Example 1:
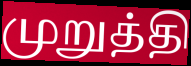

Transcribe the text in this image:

முறுத்தி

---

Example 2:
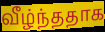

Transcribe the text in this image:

வீழ்ந்ததாக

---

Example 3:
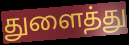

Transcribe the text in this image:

துளைத்து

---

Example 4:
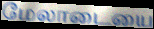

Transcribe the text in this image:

மேலாடையை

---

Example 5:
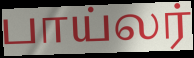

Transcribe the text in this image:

பாய்லர்